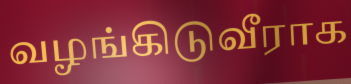
வழங்கிடுவீராக